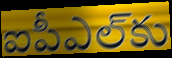
ఐపీఎల్‌కు